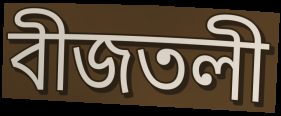
বীজতলী